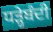
ਧੜ੍ਹੇਬੰਦੀ